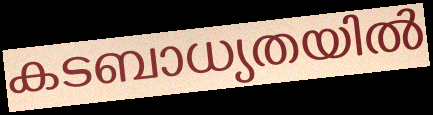
കടബാധ്യതയിൽ